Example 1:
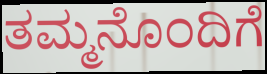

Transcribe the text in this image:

ತಮ್ಮನೊಂದಿಗೆ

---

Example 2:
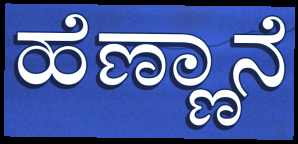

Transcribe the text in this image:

ಹೆಣ್ಣಾನೆ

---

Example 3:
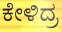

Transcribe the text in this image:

ಕೇಳಿದ್ರ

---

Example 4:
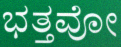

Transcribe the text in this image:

ಭತ್ತವೋ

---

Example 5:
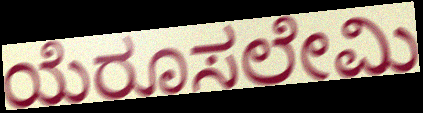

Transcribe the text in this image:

ಯೆರೂಸಲೇಮಿ